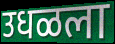
उधळला